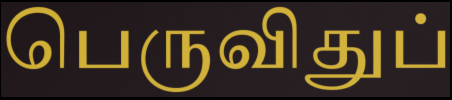
பெருவிதுப்